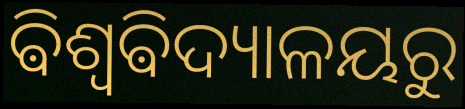
ଵିଶ୍ୱଵିଦ୍ୟାଳୟରୁ